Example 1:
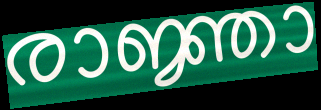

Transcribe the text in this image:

രാജ്ഞാ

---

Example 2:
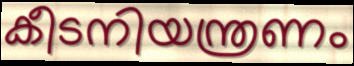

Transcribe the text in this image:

കീടനിയന്ത്രണം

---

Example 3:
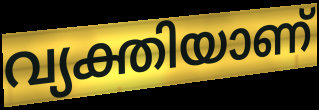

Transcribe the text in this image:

വ്യക്തിയാണ്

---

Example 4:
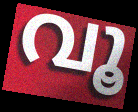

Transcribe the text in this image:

വൂ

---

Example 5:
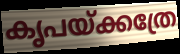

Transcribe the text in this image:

കൃപയ്ക്കത്രേ